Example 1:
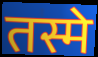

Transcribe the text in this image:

तस्मे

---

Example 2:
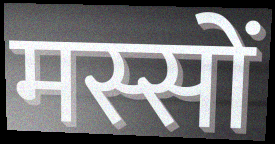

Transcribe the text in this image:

मस्सों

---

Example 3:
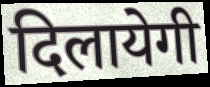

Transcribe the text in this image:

दिलायेगी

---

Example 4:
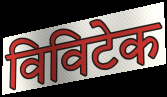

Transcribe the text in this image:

विविटेक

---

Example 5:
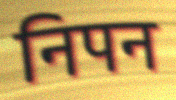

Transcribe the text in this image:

निपन